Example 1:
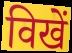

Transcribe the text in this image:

विखें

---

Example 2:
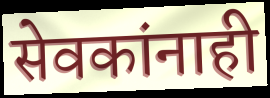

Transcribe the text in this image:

सेवकांनाही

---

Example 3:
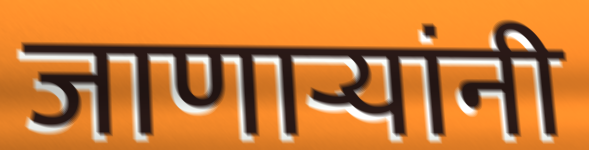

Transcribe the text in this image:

जाणाऱ्यांनी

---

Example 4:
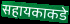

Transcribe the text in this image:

सहायकाकडे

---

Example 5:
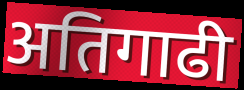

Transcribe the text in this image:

अतिगाढी